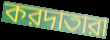
করদাতারা